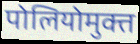
पोलियोमुक्त